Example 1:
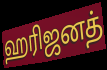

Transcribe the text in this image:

ஹரிஜனத்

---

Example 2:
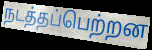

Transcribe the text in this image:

நடத்தப்பெற்றன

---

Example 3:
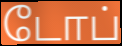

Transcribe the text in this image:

டோப்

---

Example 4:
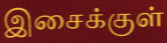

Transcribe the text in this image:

இசைக்குள்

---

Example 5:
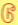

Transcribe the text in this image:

டூ